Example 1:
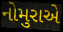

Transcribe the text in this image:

નોમુરાએ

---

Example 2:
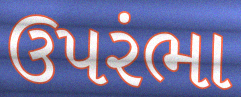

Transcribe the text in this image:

ઉપરંભા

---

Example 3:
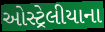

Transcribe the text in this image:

ઓસ્ટ્રેલીયાના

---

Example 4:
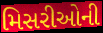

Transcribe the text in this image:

મિસરીઓની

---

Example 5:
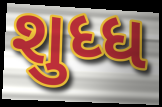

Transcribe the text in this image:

શુધ્ધ